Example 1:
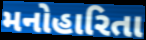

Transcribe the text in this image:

મનોહારિતા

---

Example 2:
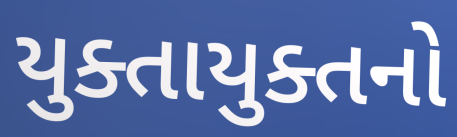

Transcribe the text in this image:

યુક્તાયુક્તનો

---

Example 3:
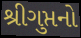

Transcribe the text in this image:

શ્રીગુપ્તનો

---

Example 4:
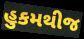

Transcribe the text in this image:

હુકમથીજ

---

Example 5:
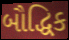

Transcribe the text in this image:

બૌદ્ધિક